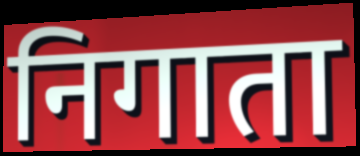
निगाता